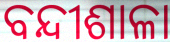
ବନ୍ଦୀଶାଳା